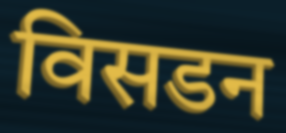
विसडन